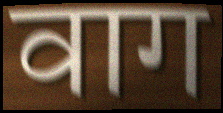
वाग